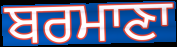
ਬਰਮਾਣਾ